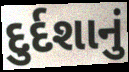
દુર્દશાનું